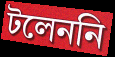
টলেননি